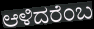
ಆಳಿದರೆಂಬ